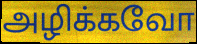
அழிக்கவோ